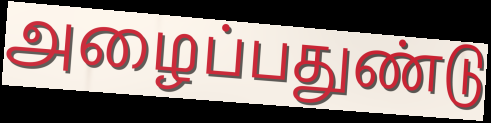
அழைப்பதுண்டு